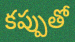
కప్పుతో